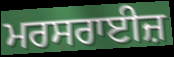
ਮਰਸਰਾਈਜ਼